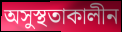
অসুস্থতাকালীন